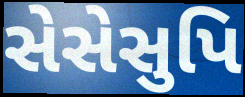
સેસેસુપિ